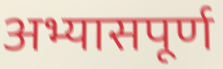
अभ्यासपूर्ण